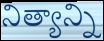
నిత్యాన్ని